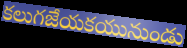
కలుగజేయకయునుండు